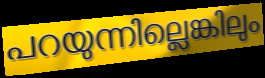
പറയുന്നില്ലെങ്കിലും